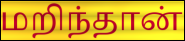
மறிந்தான்